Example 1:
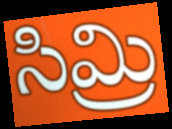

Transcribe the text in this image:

సిమ్రి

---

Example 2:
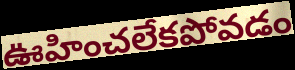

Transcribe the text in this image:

ఊహించలేకపోవడం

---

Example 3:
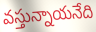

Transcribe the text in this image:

వస్తున్నాయనేది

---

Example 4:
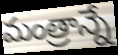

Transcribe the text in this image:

మంత్రాన్నే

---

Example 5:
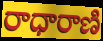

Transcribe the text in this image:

రాధారాణి